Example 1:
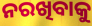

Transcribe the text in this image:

ନରଖିବାକୁ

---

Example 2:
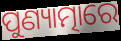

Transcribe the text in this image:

ପୁଣ୍ୟାତ୍ମାରେ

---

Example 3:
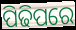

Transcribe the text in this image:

ପିଢିପରେ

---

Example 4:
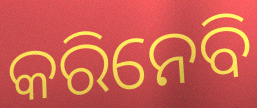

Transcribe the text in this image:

କରିନେବି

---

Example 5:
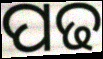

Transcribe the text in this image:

ପଢ